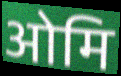
ओमि